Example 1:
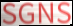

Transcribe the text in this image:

SGNS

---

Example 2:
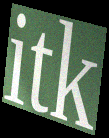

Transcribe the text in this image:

itk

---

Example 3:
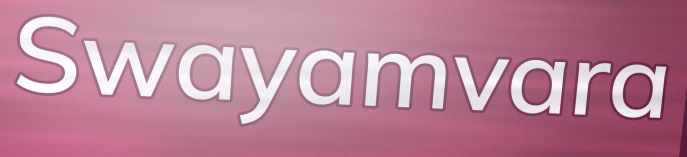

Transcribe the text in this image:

Swayamvara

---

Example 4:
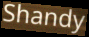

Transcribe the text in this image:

Shandy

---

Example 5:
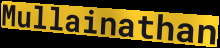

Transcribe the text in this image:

Mullainathan